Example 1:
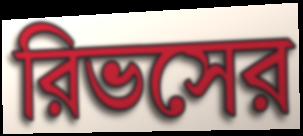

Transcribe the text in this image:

রিভসের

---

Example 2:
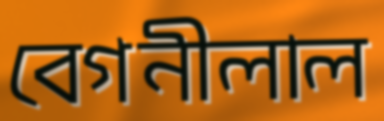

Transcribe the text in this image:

বেগনীলাল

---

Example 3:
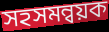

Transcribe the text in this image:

সহসমন্বয়ক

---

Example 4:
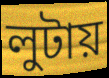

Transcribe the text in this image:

লুটায়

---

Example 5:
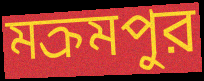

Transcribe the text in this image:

মক্রমপুর